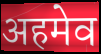
अहमेव